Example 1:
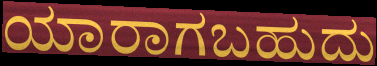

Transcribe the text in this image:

ಯಾರಾಗಬಹುದು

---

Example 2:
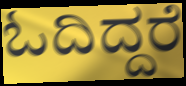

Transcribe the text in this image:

ಓದಿದ್ದರೆ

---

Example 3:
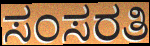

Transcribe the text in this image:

ಸಂಸರತಿ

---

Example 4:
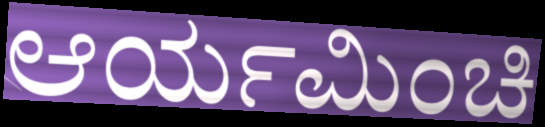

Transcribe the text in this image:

ಆರ್ಯಮಿಂಚಿ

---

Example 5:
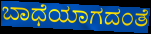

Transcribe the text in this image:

ಬಾಧೆಯಾಗದಂತೆ